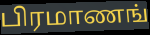
பிரமாணங்